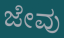
ಜೇವು